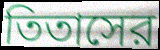
তিতাসের